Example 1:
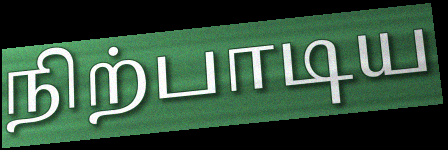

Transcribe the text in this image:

நிற்பாடிய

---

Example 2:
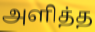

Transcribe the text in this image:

அளித்த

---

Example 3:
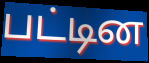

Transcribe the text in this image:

பட்டின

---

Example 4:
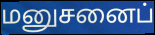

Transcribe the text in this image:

மனுசனைப்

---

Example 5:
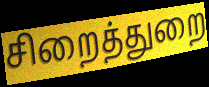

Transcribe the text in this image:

சிறைத்துறை